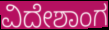
ವಿದೇಶಾಂಗ